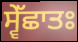
ਸ੍ਵੇੱਛਾਤਃ